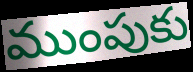
ముంపుకు